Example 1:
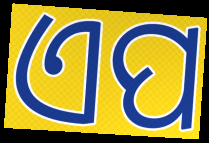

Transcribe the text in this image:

ଏପ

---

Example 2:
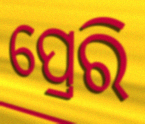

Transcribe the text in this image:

ପ୍ରେରି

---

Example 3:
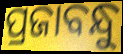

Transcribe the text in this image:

ପ୍ରଜାବନ୍ଧୁ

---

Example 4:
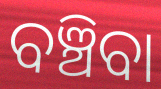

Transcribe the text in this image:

ବଞ୍ଚିବା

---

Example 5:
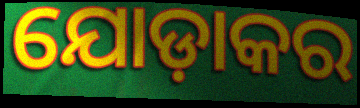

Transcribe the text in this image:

ଯୋଡ଼ାକର